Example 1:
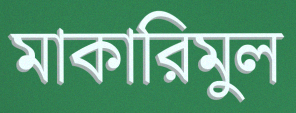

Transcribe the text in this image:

মাকারিমুল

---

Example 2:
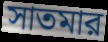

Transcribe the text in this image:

সাতমার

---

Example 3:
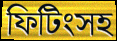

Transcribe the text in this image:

ফিটিংসহ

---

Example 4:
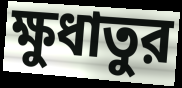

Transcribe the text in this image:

ক্ষুধাতুর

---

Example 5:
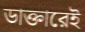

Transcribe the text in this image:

ডাক্তারেই